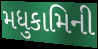
મધુકામિની